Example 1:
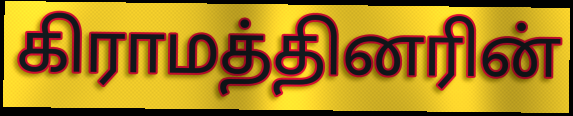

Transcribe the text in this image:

கிராமத்தினரின்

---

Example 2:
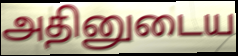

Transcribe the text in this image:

அதினுடைய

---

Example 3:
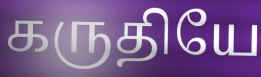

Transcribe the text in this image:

கருதியே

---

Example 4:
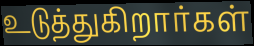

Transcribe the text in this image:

உடுத்துகிறார்கள்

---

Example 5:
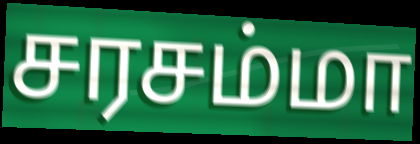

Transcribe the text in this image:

சரசம்மா